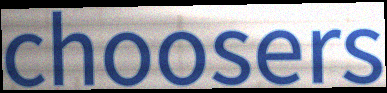
choosers